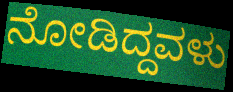
ನೋಡಿದ್ದವಳು